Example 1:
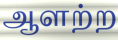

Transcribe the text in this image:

ஆளற்ற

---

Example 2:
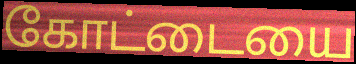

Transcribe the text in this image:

கோட்டையை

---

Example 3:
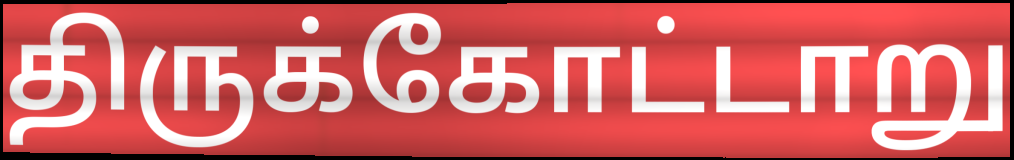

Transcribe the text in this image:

திருக்கோட்டாறு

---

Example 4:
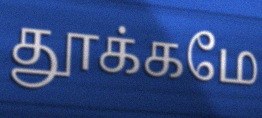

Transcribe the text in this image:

தூக்கமே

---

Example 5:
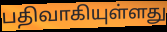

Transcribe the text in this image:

பதிவாகியுள்ளது